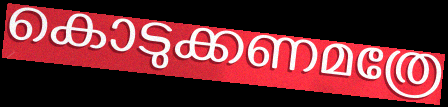
കൊടുക്കണമത്രേ